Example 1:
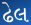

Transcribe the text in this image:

ઢેલ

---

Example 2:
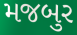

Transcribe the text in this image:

મજબુર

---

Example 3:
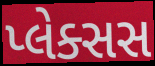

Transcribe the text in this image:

પ્લેક્સસ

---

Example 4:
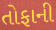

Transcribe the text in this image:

તોફાની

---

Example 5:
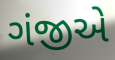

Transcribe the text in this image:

ગંજીએ